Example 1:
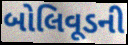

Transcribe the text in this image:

બોલિવૂડની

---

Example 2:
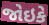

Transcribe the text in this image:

જોઇકે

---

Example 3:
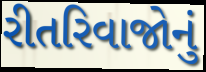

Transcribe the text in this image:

રીતરિવાજોનું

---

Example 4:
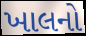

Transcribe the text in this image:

ખાલનો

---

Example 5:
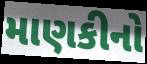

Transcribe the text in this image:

માણકીનો